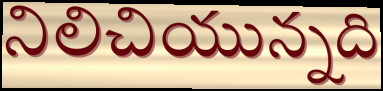
నిలిచియున్నది